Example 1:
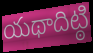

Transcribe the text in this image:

యథాదిట్ఠి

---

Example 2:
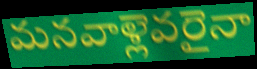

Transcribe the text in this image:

మనవాళ్లెవరైనా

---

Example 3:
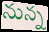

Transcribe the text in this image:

నున్న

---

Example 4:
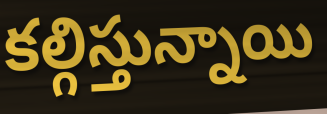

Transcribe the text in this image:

కల్గిస్తున్నాయి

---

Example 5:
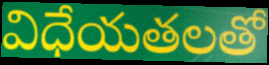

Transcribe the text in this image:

విధేయతలతో